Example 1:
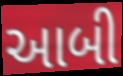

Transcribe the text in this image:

આબી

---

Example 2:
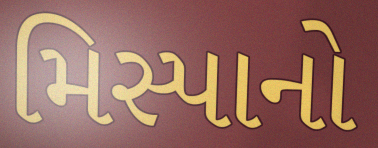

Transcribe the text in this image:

મિસ્પાનો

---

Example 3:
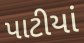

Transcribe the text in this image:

પાટીયાં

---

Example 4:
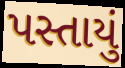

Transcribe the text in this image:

પસ્તાયું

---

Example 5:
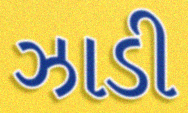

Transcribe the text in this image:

ઝાડી